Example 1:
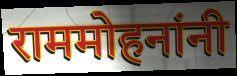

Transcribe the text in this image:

राममोहनांनी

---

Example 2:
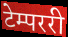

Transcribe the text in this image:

टेम्पररी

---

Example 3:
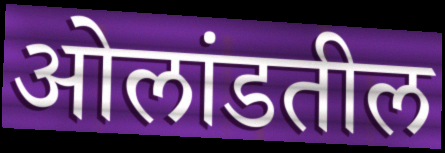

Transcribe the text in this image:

ओलांडतील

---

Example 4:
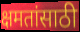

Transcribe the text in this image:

क्षमतांसाठी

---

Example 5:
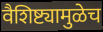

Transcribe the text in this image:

वैशिष्ट्यामुळेच